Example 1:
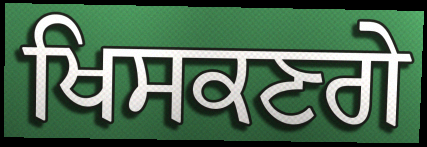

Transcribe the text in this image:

ਖਿਸਕਣਗੇ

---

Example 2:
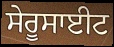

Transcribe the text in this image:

ਸੇਰੂਸਾਈਟ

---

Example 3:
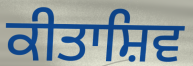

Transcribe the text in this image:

ਕੀਤਾਸ਼ਿਵ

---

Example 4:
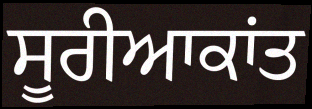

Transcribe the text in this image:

ਸੂਰੀਆਕਾਂਤ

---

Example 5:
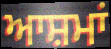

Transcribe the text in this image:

ਆਸ਼ਮਾਂ